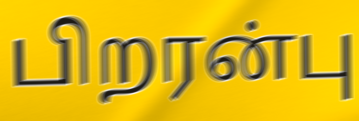
பிறரன்பு